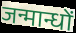
जन्मान्धों